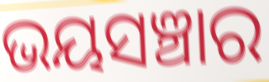
ଭୟସଞ୍ଚାର